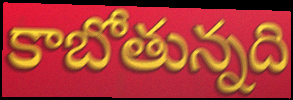
కాబోతున్నది